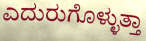
ಎದುರುಗೊಳ್ಳುತ್ತಾ